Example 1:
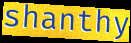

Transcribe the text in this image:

shanthy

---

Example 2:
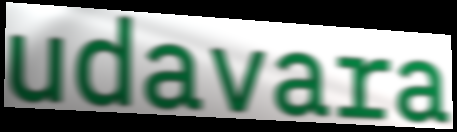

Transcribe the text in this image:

udavara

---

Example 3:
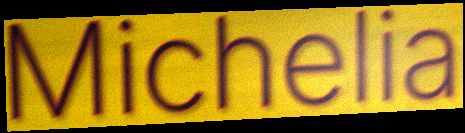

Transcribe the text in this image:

Michelia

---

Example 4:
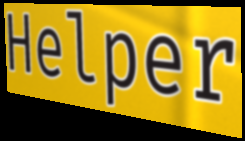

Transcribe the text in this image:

Helper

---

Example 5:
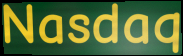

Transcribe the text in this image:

Nasdaq